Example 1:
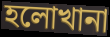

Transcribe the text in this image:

হলোখানা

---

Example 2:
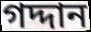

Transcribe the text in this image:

গদ্দান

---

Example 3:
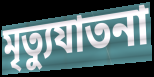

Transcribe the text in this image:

মৃত্যুযাতনা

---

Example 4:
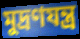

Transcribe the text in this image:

মুদ্রণযন্ত্র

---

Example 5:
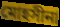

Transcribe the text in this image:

মোহসীনা